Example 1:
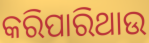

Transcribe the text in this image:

କରିପାରିଥାଉ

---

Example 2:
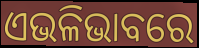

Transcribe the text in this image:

ଏଭଳିଭାବରେ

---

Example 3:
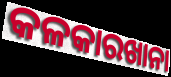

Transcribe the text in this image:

କଳକାରଖାନା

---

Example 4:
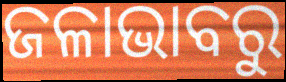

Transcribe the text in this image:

ଜଳାଭାବରୁ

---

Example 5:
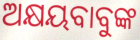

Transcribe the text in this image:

ଅକ୍ଷୟବାବୁଙ୍କ